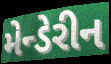
મેન્ડેરીન